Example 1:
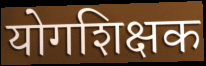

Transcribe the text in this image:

योगशिक्षक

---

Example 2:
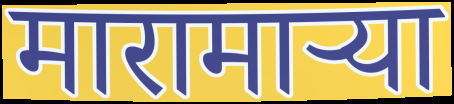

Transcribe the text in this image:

मारामाऱ्या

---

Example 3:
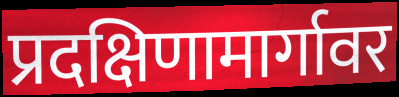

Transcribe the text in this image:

प्रदक्षिणामार्गावर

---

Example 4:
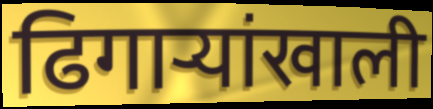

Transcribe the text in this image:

ढिगाऱ्यांखाली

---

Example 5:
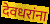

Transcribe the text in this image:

देवधरांना